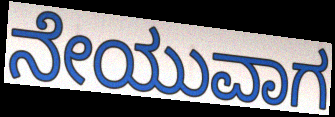
ನೇಯುವಾಗ